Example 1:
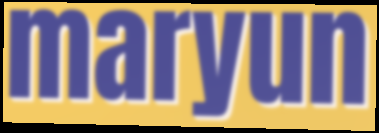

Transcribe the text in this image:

maryun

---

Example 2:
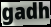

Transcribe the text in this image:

gadh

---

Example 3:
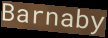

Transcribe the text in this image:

Barnaby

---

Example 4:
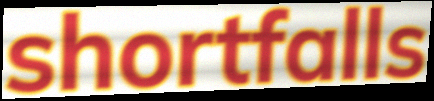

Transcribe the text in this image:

shortfalls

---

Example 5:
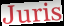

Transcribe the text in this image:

Juris